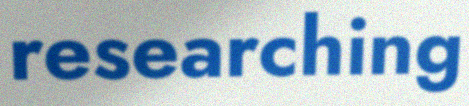
researching